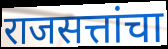
राजसत्तांचा